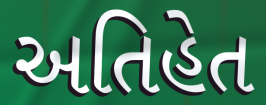
અતિહેત